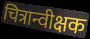
चित्रान्वीक्षक